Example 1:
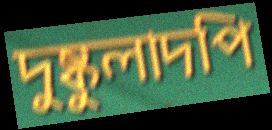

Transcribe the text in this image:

দুষ্কুলাদপি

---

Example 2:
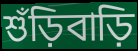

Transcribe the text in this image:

শুঁড়িবাড়ি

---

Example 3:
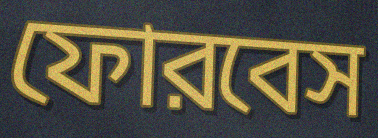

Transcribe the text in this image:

ফোরবেস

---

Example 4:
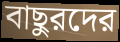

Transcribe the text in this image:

বাছুরদের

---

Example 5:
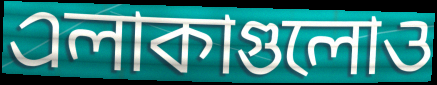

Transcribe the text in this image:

এলাকাগুলোও